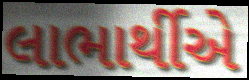
લાભાર્થીએ